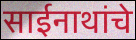
साईनाथांचे